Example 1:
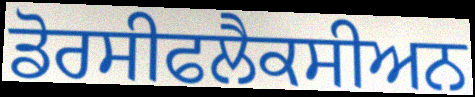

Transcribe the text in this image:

ਡੋਰਸੀਫਲੈਕਸੀਅਨ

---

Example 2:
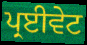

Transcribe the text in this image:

ਪ੍ਰਈਵੇਟ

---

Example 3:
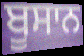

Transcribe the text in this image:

ਬੂਸਾਨ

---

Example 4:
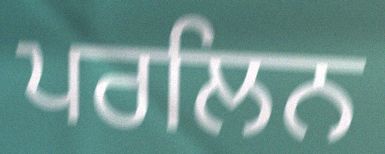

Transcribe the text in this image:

ਪਰਲਿਨ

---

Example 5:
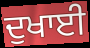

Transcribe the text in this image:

ਦੁਖਾਈ